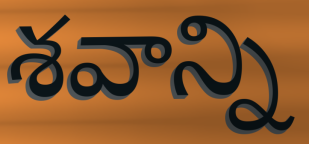
శవాన్ని